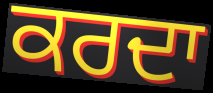
ਕਰਦਾ